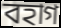
বহাগ